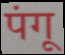
पंगू